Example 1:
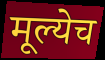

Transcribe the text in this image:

मूल्येच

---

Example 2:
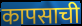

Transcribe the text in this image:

कापसाची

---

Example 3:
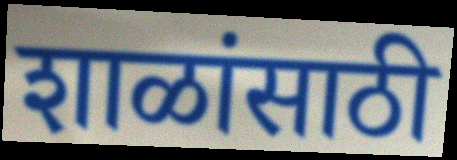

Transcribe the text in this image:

शाळांसाठी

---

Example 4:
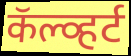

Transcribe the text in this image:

कॅल्व्हर्ट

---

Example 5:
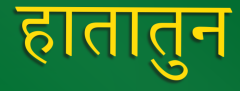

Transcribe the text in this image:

हातातुन